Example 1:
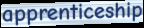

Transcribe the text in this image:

apprenticeship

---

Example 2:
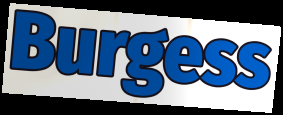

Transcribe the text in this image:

Burgess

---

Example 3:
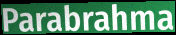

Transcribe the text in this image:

Parabrahma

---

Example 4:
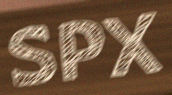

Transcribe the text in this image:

SPX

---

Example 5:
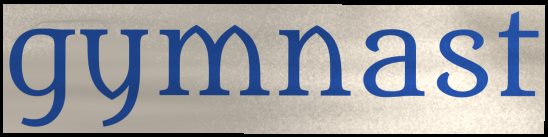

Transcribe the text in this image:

gymnast